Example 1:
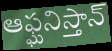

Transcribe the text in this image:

ఆఫ్ఘనిస్తాన్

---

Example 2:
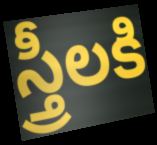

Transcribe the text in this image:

స్త్రీలకి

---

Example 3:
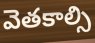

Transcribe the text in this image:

వెతకాల్సి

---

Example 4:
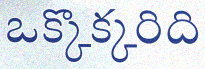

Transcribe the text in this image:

ఒక్కొక్కరిది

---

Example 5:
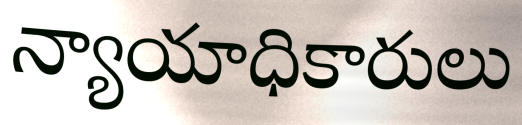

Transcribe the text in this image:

న్యాయాధికారులు